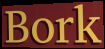
Bork